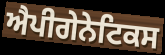
ਐਪੀਗੇਨੇਟਿਕਸ